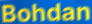
Bohdan